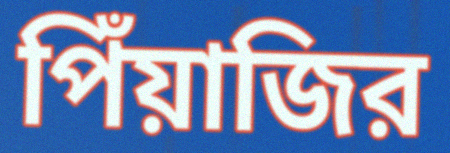
পিঁয়াজির